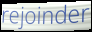
rejoinder